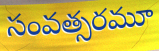
సంవత్సరమూ